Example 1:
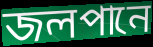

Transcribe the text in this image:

জলপানে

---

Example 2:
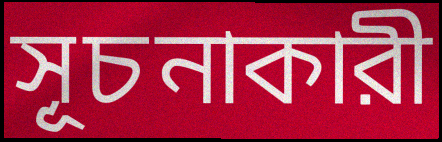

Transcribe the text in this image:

সূচনাকারী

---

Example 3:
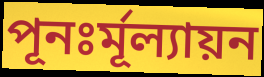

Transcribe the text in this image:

পূনঃর্মূল্যায়ন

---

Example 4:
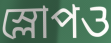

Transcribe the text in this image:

স্লোপও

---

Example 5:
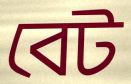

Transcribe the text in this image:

বেট